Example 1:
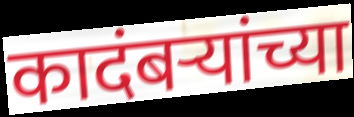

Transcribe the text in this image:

कादंबर्‍यांच्या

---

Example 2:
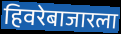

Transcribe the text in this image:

हिवरेबाजारला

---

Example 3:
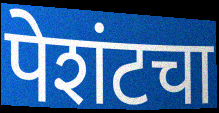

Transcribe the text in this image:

पेशंटचा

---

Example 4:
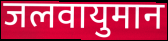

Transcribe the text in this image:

जलवायुमान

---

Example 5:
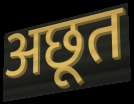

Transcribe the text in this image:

अछूत